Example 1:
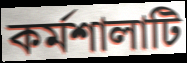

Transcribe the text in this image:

কর্মশালাটি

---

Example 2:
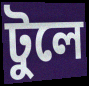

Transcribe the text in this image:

টুলে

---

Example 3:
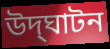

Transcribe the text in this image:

উদ্‌ঘাটন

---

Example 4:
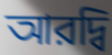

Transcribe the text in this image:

আরদ্বি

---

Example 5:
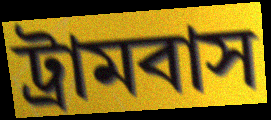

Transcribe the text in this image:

ট্রামবাস